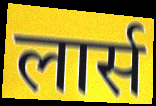
लार्स